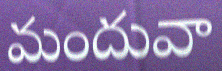
మందువా